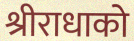
श्रीराधाको